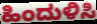
ಹಿಂದುಳಿಸಿ